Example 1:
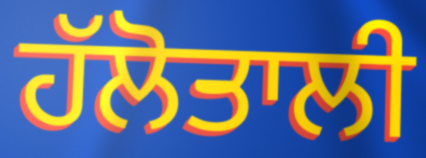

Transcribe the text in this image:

ਹੱਲੋਤਾਲੀ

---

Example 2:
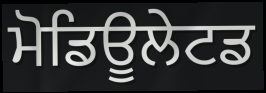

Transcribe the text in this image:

ਮੋਡਿਊਲੇਟਡ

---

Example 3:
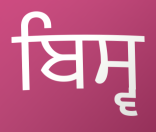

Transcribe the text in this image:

ਬਿਸ੍ਵ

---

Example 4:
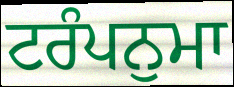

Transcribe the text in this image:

ਟਰੰਪਨੁਮਾ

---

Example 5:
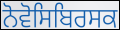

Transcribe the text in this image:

ਨੋਵੋਸਿਬਿਰਸਕ